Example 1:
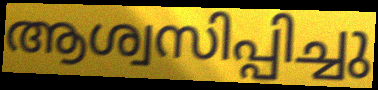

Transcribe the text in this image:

ആശ്വസിപ്പിച്ചു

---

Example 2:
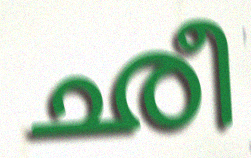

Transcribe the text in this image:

ഛീ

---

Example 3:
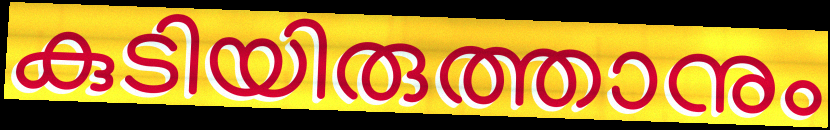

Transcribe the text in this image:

കുടിയിരുത്താനും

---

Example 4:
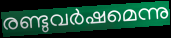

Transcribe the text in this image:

രണ്ടുവർഷമെന്നു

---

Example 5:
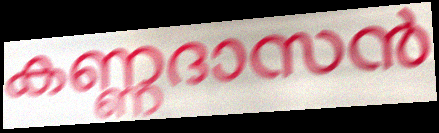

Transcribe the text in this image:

കണ്ണദാസൻ